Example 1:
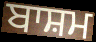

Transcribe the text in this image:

ਬਾਸ਼ਮ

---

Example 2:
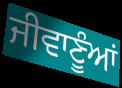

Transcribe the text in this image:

ਜੀਵਾਣੂੰਆਂ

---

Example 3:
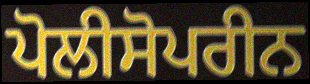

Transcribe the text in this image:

ਪੋਲੀਸੋਪਰੀਨ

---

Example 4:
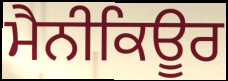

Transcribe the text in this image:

ਮੈਨੀਕਿਊਰ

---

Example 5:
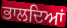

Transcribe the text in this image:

ਭਾਲਦਿਆਂ